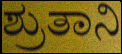
ಶ್ರುತಾನಿ